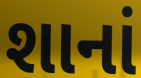
શાનાં